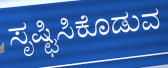
ಸೃಷ್ಟಿಸಿಕೊಡುವ